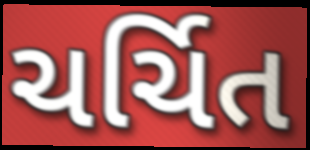
ચર્ચિત